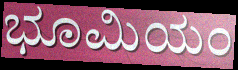
ಭೂಮಿಯಂ